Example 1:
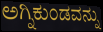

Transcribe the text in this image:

ಅಗ್ನಿಕುಂಡವನ್ನು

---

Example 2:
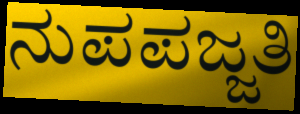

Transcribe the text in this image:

ನುಪಪಜ್ಜತಿ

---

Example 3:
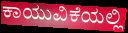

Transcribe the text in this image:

ಕಾಯುವಿಕೆಯಲ್ಲಿ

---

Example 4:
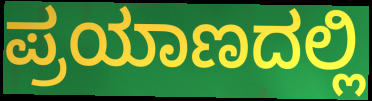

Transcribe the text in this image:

ಪ್ರಯಾಣದಲ್ಲಿ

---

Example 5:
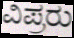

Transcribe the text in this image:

ವಿಪ್ರರು